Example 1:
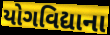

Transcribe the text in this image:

યોગવિદ્યાના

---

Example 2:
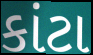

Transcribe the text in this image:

કાંટા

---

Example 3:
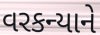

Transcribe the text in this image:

વરકન્યાને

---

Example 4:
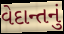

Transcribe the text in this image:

વેદાન્તનું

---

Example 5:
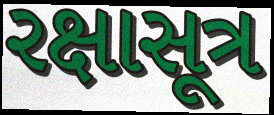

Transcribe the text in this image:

રક્ષાસૂત્ર